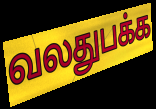
வலதுபக்க